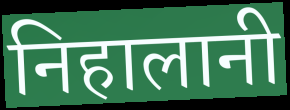
निहालानी